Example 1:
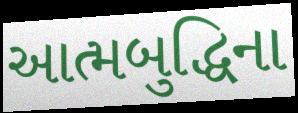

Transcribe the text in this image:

આત્મબુદ્ધિના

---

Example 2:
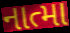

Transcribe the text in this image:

નાત્મા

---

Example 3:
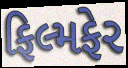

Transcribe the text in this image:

ફિલ્મફેર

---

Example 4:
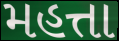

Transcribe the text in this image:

મહત્તા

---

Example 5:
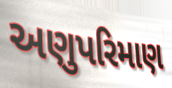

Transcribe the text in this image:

અણુપરિમાણ